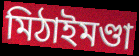
মিঠাইমণ্ডা